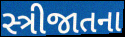
સ્ત્રીજાતના